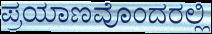
ಪ್ರಯಾಣವೊಂದರಲ್ಲಿ